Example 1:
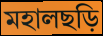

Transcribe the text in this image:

মহালছড়ি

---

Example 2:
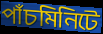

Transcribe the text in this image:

পাঁচমিনিটে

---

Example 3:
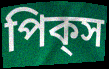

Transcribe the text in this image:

পিক্‌স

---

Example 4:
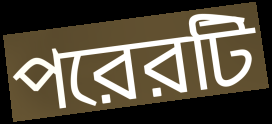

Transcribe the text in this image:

পরেরটি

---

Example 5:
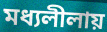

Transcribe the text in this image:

মধ্যলীলায়